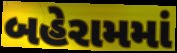
બહેરામમાં